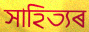
সাহিত্যৰ